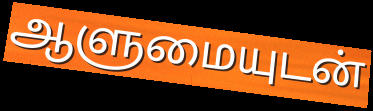
ஆளுமையுடன்